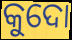
କୁଦୋ